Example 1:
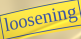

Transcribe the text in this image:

loosening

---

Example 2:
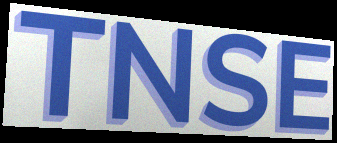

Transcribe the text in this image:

TNSE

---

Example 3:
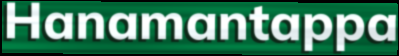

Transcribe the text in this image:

Hanamantappa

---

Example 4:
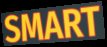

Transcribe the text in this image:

SMART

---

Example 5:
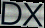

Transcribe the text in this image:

DX